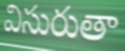
విసురుతా